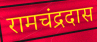
रामचंद्रदास